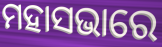
ମହାସଭାରେ